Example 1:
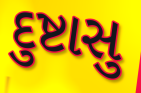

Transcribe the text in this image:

દુષ્ટાસુ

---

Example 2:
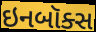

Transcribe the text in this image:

ઇનબૉક્સ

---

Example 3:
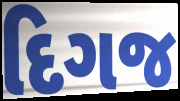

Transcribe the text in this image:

દિગજ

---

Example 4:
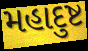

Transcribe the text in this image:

મહાદુષ્ટ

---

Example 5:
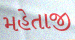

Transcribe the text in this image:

મહેતાજી